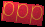
ppp